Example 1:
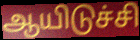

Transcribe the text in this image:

ஆயிடுச்சி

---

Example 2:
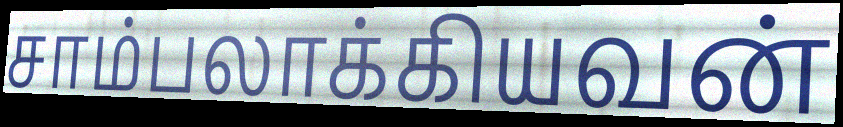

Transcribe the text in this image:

சாம்பலாக்கியவன்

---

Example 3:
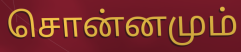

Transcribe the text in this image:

சொன்னமும்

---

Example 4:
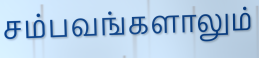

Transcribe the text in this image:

சம்பவங்களாலும்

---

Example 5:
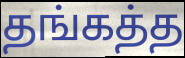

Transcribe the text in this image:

தங்கத்த